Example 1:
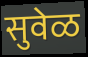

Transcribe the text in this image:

सुवेळ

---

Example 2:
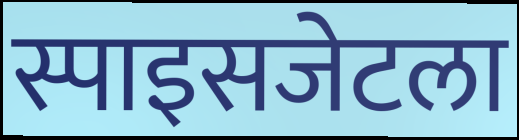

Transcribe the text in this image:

स्पाइसजेटला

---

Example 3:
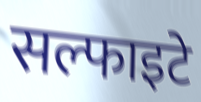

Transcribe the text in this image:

सल्फाइटे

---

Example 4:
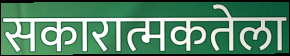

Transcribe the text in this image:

सकारात्मकतेला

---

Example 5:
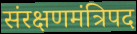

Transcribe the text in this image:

संरक्षणमंत्रिपद